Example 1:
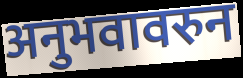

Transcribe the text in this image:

अनुभवावरुन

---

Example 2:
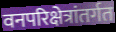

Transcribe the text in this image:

वनपरिक्षेत्रांतर्गत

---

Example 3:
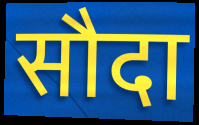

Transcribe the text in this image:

सौदा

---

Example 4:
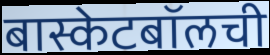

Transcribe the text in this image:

बास्केटबॉलची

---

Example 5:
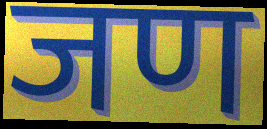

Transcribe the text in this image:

जण